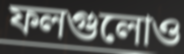
ফলগুলোও